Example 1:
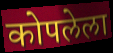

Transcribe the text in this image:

कोपलेला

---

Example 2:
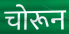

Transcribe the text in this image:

चोरून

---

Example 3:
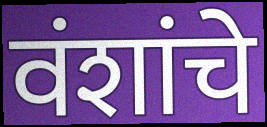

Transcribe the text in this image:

वंशांचे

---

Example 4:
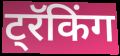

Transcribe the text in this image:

ट्रॅकिंग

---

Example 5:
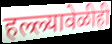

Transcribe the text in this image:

हल्ल्यावेळीही